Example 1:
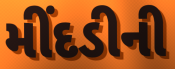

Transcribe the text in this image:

મીંદડીની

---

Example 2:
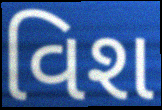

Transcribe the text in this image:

વિશ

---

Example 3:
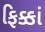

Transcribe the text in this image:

ફિક્કાં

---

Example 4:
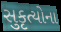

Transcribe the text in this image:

સુકૃત્યોના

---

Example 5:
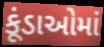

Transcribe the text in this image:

કૂંડાઓમાં